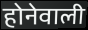
होनेवाली